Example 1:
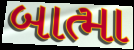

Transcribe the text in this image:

બાત્મા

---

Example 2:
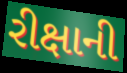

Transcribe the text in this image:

રીક્ષાની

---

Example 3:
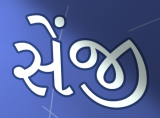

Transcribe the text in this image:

સેંજી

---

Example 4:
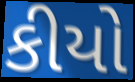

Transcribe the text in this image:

કીયો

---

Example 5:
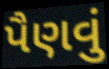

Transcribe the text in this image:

પૈણવું